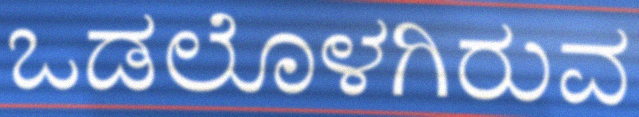
ಒಡಲೊಳಗಿರುವ